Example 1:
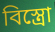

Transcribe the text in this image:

বিস্ত্রো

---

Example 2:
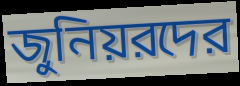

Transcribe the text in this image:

জুনিয়রদের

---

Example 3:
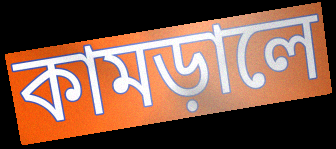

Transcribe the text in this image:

কামড়ালে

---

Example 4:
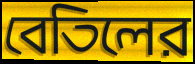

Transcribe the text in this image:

বেতিলের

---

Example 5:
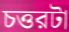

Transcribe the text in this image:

চত্তরটা